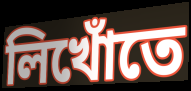
লিখোঁতে